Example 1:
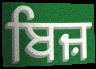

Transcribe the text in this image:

ਬਿਜ਼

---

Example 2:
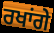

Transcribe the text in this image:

ਰਖਾਂਗੇ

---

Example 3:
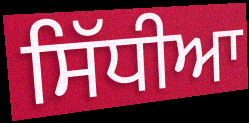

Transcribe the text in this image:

ਸਿੱਧੀਆ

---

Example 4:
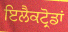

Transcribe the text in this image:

ਇਲੈਕਟ੍ਰੋਡਾਂ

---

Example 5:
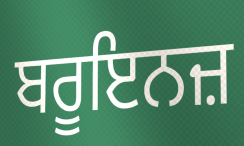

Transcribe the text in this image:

ਬਰੂਇਨਜ਼